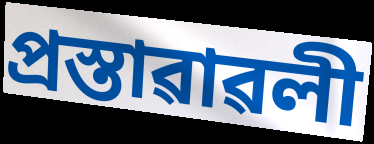
প্ৰস্তাৱাৱলী